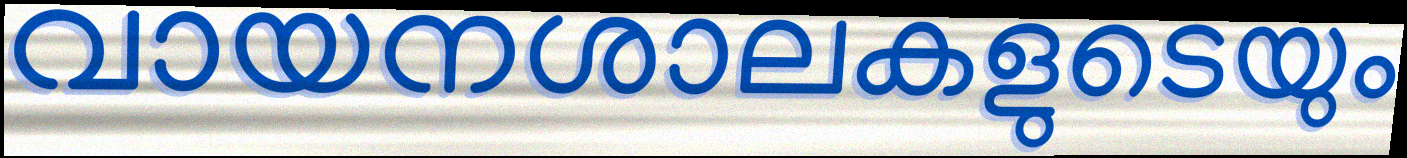
വായനശാലകളുടെയും